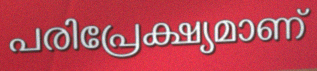
പരിപ്രേക്ഷ്യമാണ്